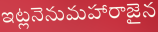
ఇట్లనెనుమహారాజైన